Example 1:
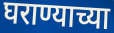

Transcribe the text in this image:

घराण्याच्या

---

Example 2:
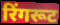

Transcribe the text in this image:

रिंगरूट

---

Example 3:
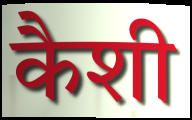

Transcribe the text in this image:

कैशी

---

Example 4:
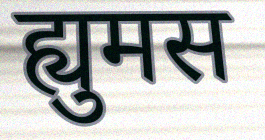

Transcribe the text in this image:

ह्युमस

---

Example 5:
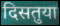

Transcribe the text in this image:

दिसतुया